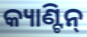
କ୍ୟାଣ୍ଟିନ୍